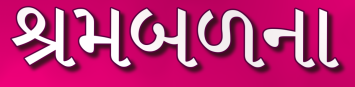
શ્રમબળના